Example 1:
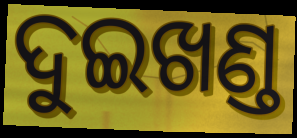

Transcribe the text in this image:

ଦୁଇଖଣ୍ଡ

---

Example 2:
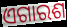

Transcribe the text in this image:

ଏଗାରଶ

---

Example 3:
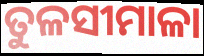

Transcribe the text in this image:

ତୁଳସୀମାଳା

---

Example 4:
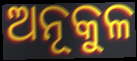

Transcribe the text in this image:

ଅନୂକୁଳ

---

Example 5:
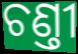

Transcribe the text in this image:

ଚଣ୍ତୀ